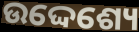
ଉଦ୍ଦେଶ୍ୟେ